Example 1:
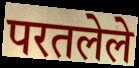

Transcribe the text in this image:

परतलेले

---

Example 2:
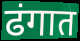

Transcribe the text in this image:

ढंगात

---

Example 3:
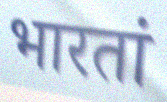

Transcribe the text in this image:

भारतां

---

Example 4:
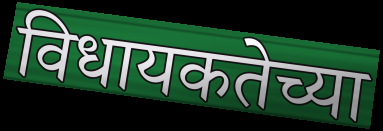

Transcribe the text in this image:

विधायकतेच्या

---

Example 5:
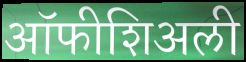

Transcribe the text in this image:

ऑफीशिअली